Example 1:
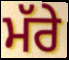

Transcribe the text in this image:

ਮੱਰੇ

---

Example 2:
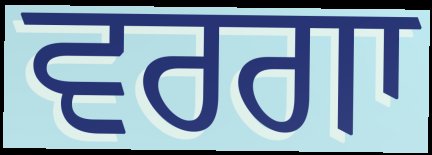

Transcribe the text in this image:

ਵਰਗਾ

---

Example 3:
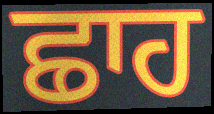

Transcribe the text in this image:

ਛਾਹ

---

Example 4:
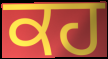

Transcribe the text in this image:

ਕਹ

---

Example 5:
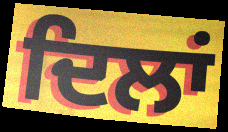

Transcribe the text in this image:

ਦਿਲਾਂ